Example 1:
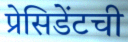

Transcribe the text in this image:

प्रेसिडेंटची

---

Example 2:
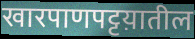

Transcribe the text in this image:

खारपाणपट्टय़ातील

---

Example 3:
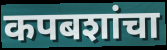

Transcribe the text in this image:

कपबशांचा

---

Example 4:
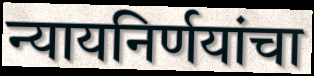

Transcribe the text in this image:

न्यायनिर्णयांचा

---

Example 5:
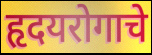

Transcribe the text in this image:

हृदयरोगाचे